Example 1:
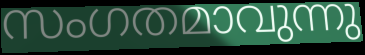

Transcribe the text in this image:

സംഗതമാവുന്നു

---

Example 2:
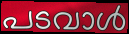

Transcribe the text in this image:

പടവാൾ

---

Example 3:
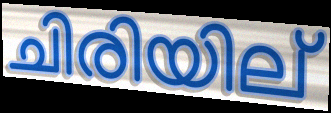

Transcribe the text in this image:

ചിരിയില്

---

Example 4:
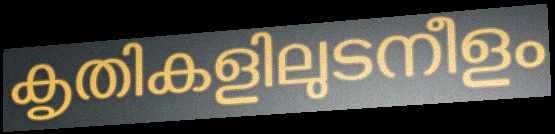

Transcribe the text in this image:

കൃതികളിലുടനീളം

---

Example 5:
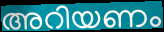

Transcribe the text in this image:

അറിയണം